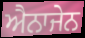
ਐਨਾਜੇਨ